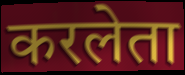
करलेता